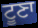
ਟੂਣਾ